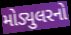
મોડ્યુલરનો